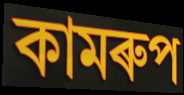
কামৰুপ